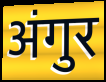
अंगुर